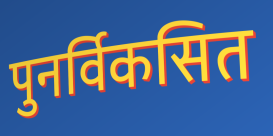
पुनर्विकसित